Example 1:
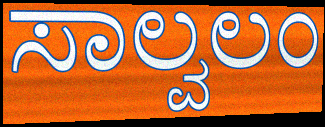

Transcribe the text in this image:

ಸಾಲ್ವಲಂ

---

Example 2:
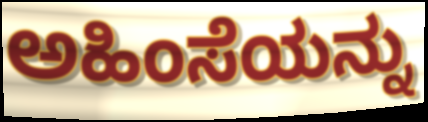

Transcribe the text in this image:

ಅಹಿಂಸೆಯನ್ನು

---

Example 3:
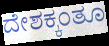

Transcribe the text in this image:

ದೇಶಕ್ಕಂತೂ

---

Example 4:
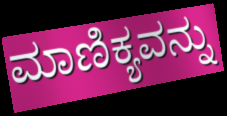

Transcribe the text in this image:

ಮಾಣಿಕ್ಯವನ್ನು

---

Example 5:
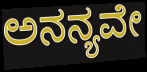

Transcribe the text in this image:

ಅನನ್ಯವೇ